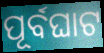
ପୂର୍ବଘାଟ